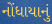
નોંધાયાનું